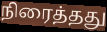
நிரைத்தது